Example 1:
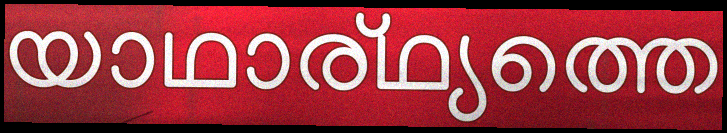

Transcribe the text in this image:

യാഥാര്ഥ്യത്തെ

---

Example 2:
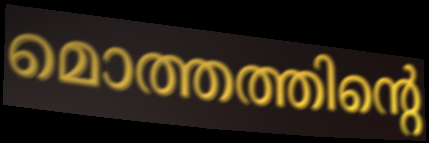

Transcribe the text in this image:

മൊത്തത്തിന്റെ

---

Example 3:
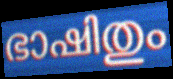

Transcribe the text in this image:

ഭാഷിതും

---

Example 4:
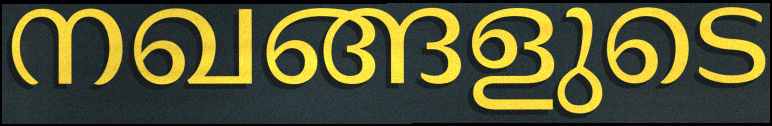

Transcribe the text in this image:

നഖങ്ങളുടെ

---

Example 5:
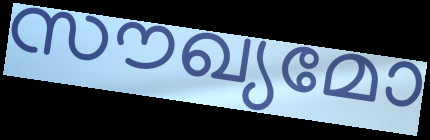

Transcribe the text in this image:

സൗഖ്യമോ